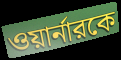
ওয়ার্নারকে